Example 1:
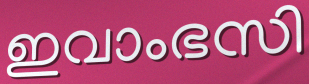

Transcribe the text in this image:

ഇവാംഭസി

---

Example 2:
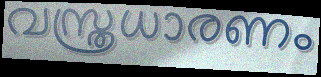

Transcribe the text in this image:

വസ്ത്രധാരണം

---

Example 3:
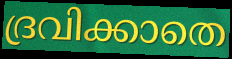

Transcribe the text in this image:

ദ്രവിക്കാതെ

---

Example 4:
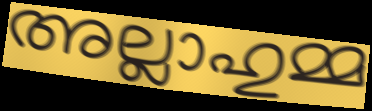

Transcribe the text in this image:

അല്ലാഹുമ്മ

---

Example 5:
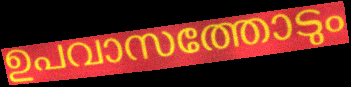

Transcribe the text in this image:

ഉപവാസത്തോടും